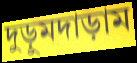
দুড়ুমদাড়াম